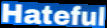
Hateful